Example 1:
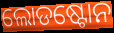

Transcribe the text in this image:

ଲୋଡଷ୍ଟୋନ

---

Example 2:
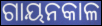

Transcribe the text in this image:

ଗାୟନକାଳ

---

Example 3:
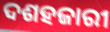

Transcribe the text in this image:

ଦଶହଜାରୀ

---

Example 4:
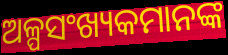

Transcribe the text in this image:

ଅଳ୍ପସଂଖ୍ୟକମାନଙ୍କ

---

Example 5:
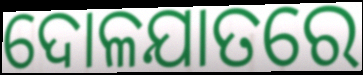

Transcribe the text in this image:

ଦୋଳଯାତରେ